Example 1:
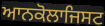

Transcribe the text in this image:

ਆਨਕੋਲਾਜਿਸਟ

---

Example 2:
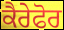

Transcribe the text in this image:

ਕੈਰੇਫੋਰ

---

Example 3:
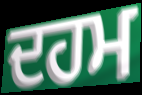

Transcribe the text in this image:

ਦਹਮ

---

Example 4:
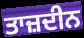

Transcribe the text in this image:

ਤਾਜ਼ਦੀਨ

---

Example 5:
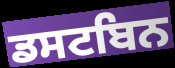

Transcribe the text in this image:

ਡਸਟਬਿਨ